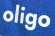
oligo